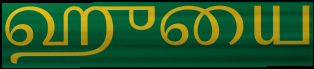
ஹுயை